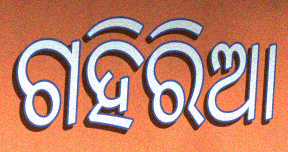
ଗହିରିଆ